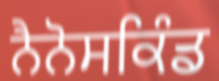
ਨੈਨੋਸਕਿੰਡ